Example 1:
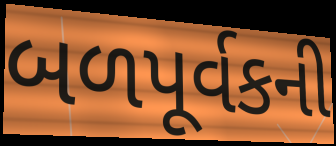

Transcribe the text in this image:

બળપૂર્વકની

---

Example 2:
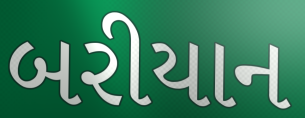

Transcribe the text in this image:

બરીયાન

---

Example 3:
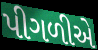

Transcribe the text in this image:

પીગળીએ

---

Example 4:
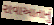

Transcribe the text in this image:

રાવાઆતાનું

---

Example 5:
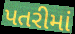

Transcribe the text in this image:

પતરીમાં